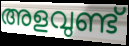
അളവുണ്ട്